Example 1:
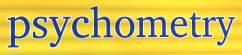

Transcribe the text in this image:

psychometry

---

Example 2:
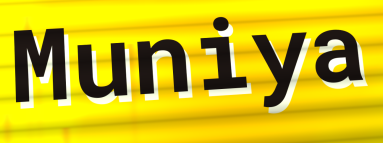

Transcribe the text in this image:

Muniya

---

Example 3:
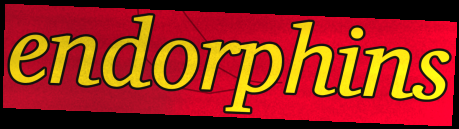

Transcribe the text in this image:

endorphins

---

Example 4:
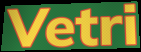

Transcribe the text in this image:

Vetri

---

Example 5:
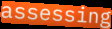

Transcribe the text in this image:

assessing